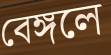
বেঙ্গলে